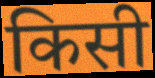
किसी